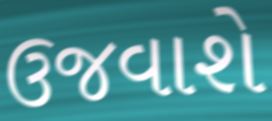
ઉજવાશે